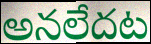
అనలేదట